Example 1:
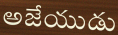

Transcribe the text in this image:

అజేయుడు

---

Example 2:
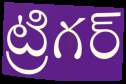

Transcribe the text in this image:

ట్రిగర్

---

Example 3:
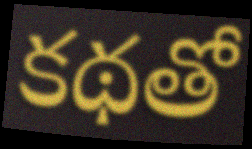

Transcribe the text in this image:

కథతో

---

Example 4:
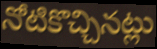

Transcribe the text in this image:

నోటికొచ్చినట్లు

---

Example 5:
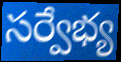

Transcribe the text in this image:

సర్వేభ్య